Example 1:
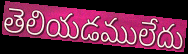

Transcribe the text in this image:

తెలియడములేదు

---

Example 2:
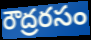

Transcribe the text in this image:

రౌద్రరసం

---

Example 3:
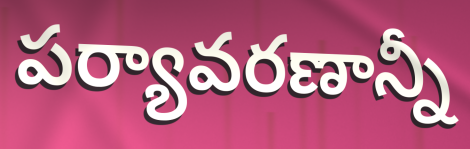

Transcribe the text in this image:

పర్యావరణాన్నీ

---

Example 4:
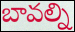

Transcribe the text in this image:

బావల్ని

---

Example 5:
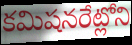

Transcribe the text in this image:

కమిషనరేట్లోని